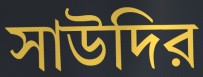
সাউদির